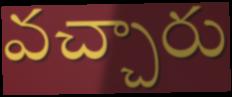
వచ్చారు